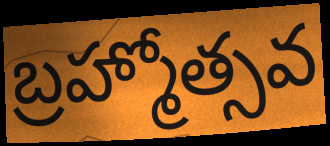
బ్రహ్మోత్సవ